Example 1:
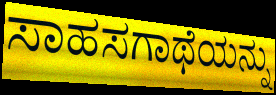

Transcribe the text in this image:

ಸಾಹಸಗಾಥೆಯನ್ನು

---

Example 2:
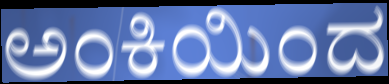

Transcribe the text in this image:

ಅಂಕಿಯಿಂದ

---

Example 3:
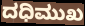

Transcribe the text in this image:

ದಧಿಮುಖ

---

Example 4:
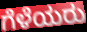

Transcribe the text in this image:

ಗೆಳೆಯರು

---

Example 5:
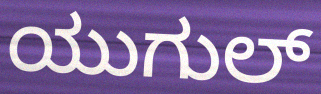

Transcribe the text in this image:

ಯುಗುಲ್